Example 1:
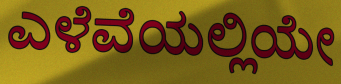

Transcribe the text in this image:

ಎಳೆವೆಯಲ್ಲಿಯೇ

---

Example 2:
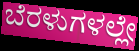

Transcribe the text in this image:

ಬೆರಳುಗಳಲ್ಲೇ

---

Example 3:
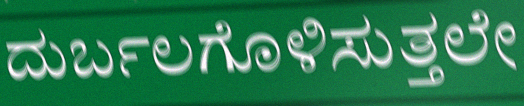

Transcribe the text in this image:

ದುರ್ಬಲಗೊಳಿಸುತ್ತಲೇ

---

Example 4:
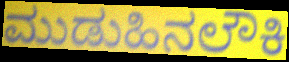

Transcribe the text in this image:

ಮುಡುಹಿನಲೌಕಿ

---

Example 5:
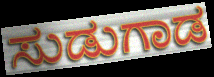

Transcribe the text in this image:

ಸುಡುಗಾಡ